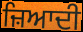
ਜ਼ਿਆਦੀ